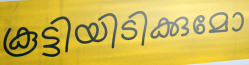
കൂട്ടിയിടിക്കുമോ